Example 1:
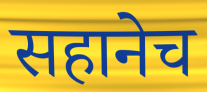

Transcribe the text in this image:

सहानेच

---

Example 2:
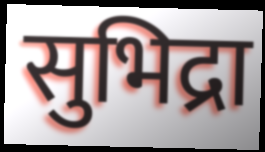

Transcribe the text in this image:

सुभिद्रा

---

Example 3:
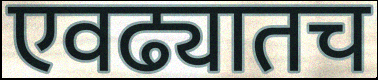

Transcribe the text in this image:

एवढ्यातच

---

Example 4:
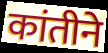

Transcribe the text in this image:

कांतीने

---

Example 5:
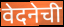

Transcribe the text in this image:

वेदनेची